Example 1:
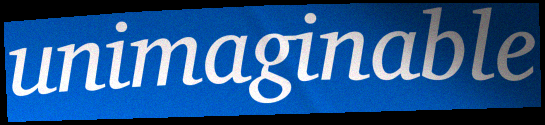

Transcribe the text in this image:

unimaginable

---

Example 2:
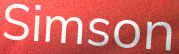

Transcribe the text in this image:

Simson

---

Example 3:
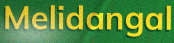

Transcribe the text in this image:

Melidangal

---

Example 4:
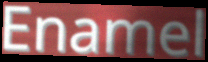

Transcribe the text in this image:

Enamel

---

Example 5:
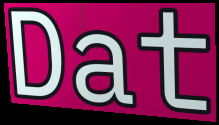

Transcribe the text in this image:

Dat